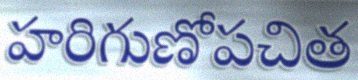
హరిగుణోపచిత